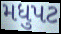
મધુપટ